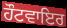
ਹੌਟਵਾਇਰ